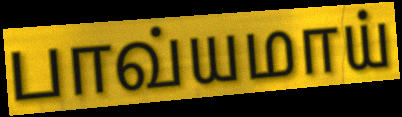
பாவ்யமாய்